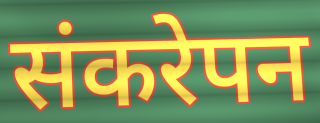
संकरेपन